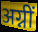
अग्नीं